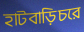
হাটবাড়িচরে